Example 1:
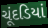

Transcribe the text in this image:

ચૂંદડિયાં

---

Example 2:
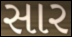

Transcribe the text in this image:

સાર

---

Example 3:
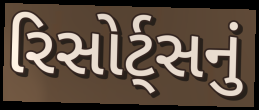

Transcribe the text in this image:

રિસોર્ટ્સનું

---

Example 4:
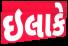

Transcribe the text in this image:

ઇલાકે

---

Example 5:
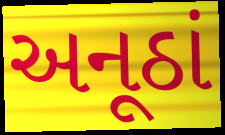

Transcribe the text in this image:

અનૂઠાં